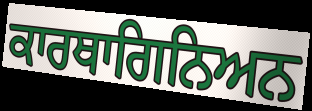
ਕਾਰਥਾਗਿਨਿਅਨ